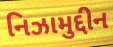
નિઝામુદ્દીન